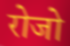
रोजो